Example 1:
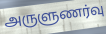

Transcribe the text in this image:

அருளுணர்வு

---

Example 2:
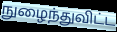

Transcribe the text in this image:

நுழைந்துவிட்ட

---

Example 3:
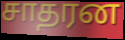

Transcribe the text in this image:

சாதரன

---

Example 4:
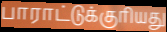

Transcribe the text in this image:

பாராட்டுக்குரியது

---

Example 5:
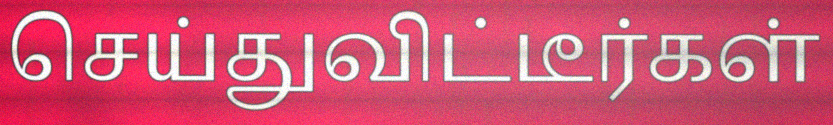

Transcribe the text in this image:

செய்துவிட்டீர்கள்